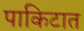
पाकिटात